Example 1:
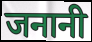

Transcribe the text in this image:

जनानी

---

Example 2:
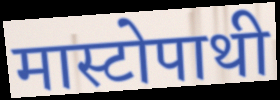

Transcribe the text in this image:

मास्टोपाथी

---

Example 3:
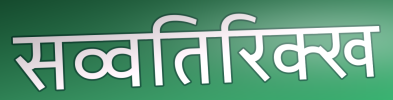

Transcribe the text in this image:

सव्वतिरिक्ख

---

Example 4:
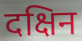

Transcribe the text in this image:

दक्षिन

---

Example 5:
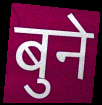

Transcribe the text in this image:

बुने